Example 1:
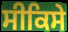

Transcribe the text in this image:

ਸੀਕਿਸੇ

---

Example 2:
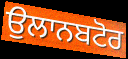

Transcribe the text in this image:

ਉਲਾਨਬਟੋਰ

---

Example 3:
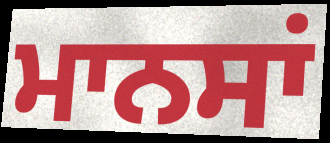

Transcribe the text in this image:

ਮਾਨਸਾਂ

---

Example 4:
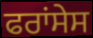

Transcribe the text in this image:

ਫਰਾਂਸੇਸ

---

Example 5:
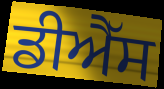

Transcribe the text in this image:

ਡੀਐੱਸ